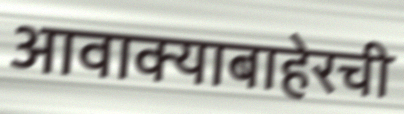
आवाक्याबाहेरची